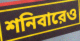
শনিবারেও